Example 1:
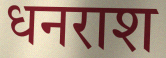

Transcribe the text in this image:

धनराश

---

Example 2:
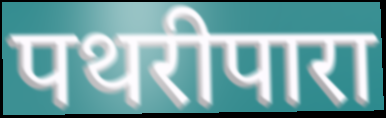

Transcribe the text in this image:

पथरीपारा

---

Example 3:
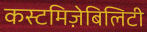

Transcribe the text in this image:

कस्टमिज़ेबिलिटी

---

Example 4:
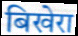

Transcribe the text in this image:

बिखेरा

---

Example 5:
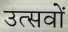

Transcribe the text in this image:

उत्सवों